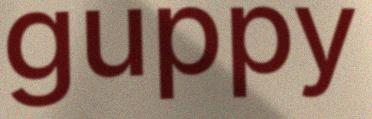
guppy